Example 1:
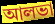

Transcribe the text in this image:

আলভা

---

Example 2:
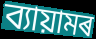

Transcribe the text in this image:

ব্যায়ামৰ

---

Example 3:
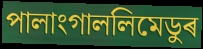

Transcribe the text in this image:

পালাংগাললিমেডুৰ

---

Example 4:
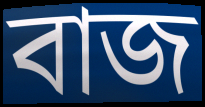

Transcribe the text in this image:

বাজ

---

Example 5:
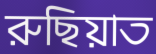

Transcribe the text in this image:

ৰুছিয়াত